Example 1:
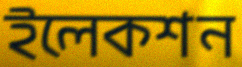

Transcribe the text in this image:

ইলেকশন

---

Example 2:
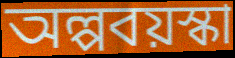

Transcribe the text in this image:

অল্পবয়স্কা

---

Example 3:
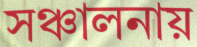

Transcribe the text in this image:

সঞ্চালনায়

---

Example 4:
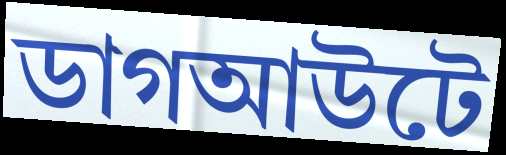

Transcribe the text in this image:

ডাগআউটে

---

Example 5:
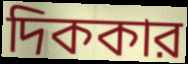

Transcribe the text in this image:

দিককার